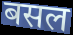
बसल